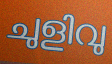
ചുളിവു